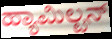
ಹ್ಯಾಮಿಲ್ಟನ್